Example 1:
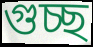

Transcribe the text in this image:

গুচ্ছ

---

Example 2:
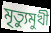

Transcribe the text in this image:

মৃত্যুমুখী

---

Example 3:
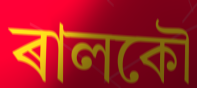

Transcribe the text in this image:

ৰালকৌ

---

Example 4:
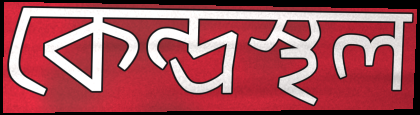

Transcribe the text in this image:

কেন্দ্ৰস্থল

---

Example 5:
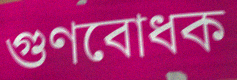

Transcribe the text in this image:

গুণবোধক